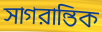
সাগরান্তিক